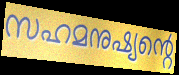
സഹമനുഷ്യന്റെ